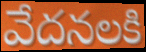
వేదనలకి